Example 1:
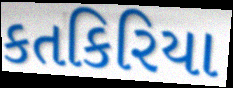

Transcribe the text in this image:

કતકિરિયા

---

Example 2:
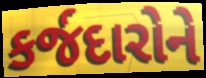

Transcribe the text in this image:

કર્જદારોને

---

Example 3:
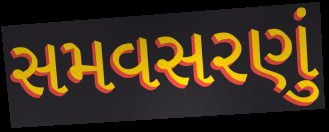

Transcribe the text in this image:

સમવસરણું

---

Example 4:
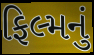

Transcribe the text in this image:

ફિલ્મનું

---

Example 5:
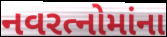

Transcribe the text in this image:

નવરત્નોમાંના